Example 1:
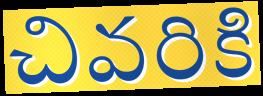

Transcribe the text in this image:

చివరికి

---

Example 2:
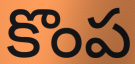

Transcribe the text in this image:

కొంప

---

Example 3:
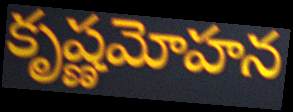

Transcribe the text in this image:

కృష్ణమోహన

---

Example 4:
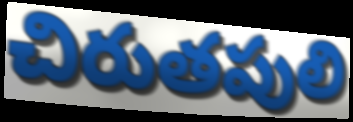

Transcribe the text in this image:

చిరుతపులి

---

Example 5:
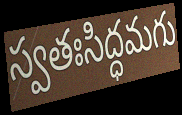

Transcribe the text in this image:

స్వతఃసిద్ధమగు